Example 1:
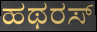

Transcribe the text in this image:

ಹಥರಸ್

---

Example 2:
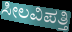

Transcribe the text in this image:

ಸೀಲವಿಪತ್ತಿ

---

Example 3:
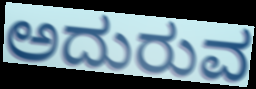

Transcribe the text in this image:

ಅದುರುವ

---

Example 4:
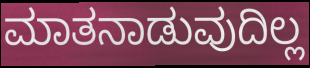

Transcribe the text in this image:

ಮಾತನಾಡುವುದಿಲ್ಲ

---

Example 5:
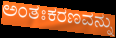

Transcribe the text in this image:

ಅಂತಃಕರಣವನ್ನು